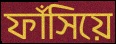
ফাঁসিয়ে